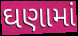
ઘણામાં